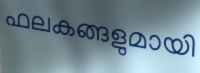
ഫലകങ്ങളുമായി